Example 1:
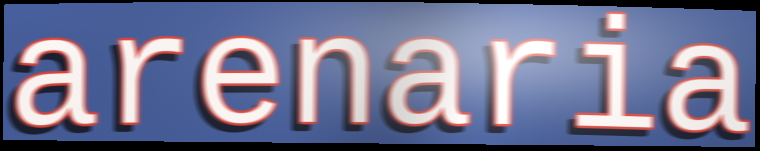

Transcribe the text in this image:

arenaria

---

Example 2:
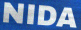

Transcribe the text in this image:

NIDA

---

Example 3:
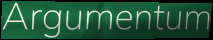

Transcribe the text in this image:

Argumentum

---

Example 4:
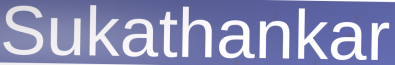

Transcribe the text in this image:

Sukathankar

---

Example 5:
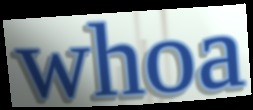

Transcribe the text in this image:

whoa